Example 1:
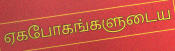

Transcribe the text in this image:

ஏகபோகங்களுடைய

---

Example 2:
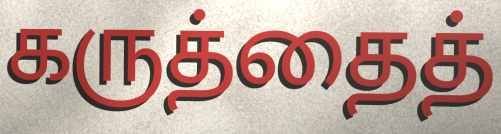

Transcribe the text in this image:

கருத்தைத்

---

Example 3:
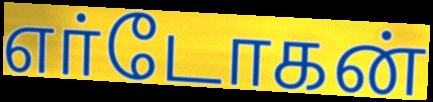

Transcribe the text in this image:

எர்டோகன்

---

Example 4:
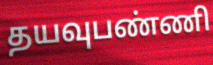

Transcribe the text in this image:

தயவுபண்ணி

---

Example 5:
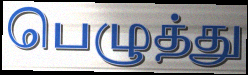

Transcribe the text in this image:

பெழுத்து